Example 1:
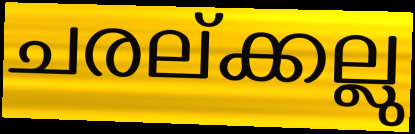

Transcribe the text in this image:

ചരല്ക്കല്ലു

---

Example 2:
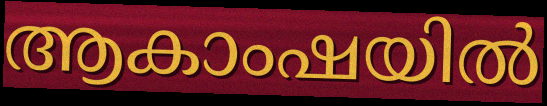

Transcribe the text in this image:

ആകാംഷയിൽ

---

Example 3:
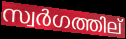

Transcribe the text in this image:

സ്വർഗത്തില്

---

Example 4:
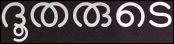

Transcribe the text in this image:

ദൂതരുടെ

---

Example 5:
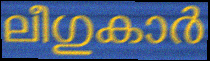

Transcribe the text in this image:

ലീഗുകാർ